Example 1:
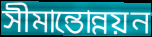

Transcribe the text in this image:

সীমান্তোন্নয়ন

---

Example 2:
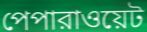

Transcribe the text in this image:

পেপারাওয়েট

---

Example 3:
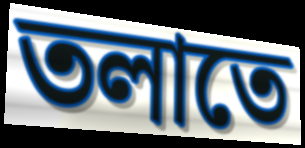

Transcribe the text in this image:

তলাতে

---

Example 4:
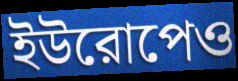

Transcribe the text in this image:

ইউরোপেও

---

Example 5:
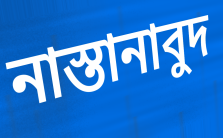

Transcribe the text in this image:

নাস্তানাবুদ